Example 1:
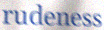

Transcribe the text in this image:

rudeness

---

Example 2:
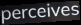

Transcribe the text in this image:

perceives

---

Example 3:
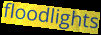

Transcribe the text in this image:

floodlights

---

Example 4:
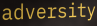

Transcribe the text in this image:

adversity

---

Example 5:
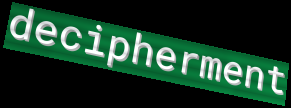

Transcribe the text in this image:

decipherment